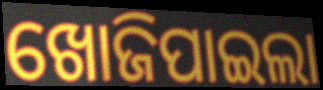
ଖୋଜିପାଇଲା